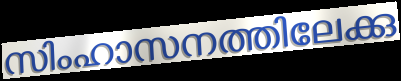
സിംഹാസനത്തിലേക്കു